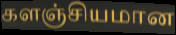
களஞ்சியமான